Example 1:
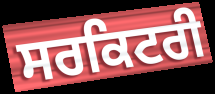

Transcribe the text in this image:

ਸਰਕਿਟਰੀ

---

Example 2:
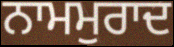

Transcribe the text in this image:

ਨਾਮਮੁਰਾਦ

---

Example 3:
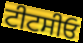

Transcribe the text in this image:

ਟੀਟਸੀਓ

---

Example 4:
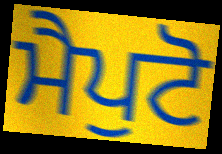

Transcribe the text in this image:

ਮੈਪੁਟੋ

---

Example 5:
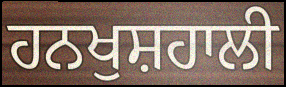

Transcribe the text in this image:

ਹਨਖੁਸ਼ਹਾਲੀ